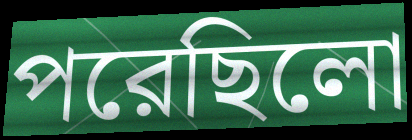
পরেছিলো